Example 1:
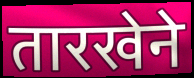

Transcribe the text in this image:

तारखेने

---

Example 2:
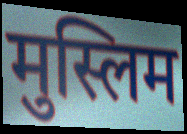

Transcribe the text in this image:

मुस्लिम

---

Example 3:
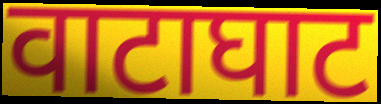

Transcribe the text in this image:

वाटाघाट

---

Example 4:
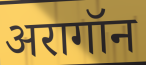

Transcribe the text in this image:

अरागॉन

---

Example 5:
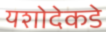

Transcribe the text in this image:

यशोदेकडे